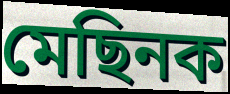
মেছিনক